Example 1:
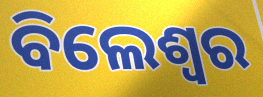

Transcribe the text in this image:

ବିଲେଶ୍ଵର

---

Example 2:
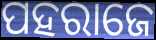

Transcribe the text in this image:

ପହରାଜେ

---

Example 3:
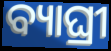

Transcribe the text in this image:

ବ୍ୟାଘ୍ରୀ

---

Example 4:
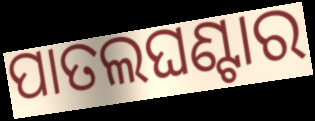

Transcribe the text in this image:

ପାତଲଘଣ୍ଟାର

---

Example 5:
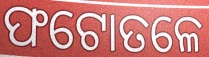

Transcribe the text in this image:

ଫଟୋତଳେ